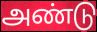
அண்டு